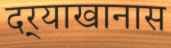
दर्याखानास